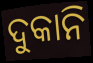
ଦୁକାନି